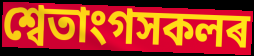
শ্বেতাংগসকলৰ